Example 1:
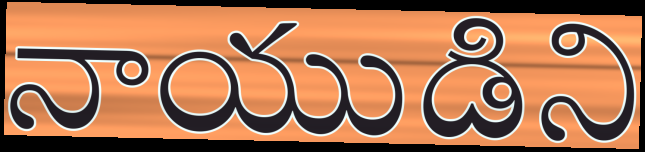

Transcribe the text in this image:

నాయుడిని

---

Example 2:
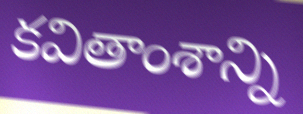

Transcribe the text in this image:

కవితాంశాన్ని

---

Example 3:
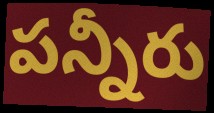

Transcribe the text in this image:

పన్నీరు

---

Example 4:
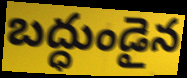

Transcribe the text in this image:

బద్ధుండైన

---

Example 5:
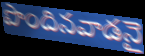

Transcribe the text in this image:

పొందినవాడనై